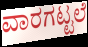
ವಾರಗಟ್ಟಲೆ